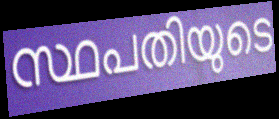
സ്ഥപതിയുടെ